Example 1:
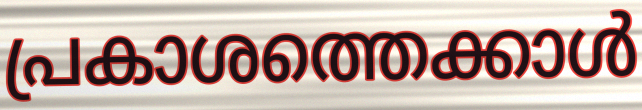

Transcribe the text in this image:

പ്രകാശത്തെക്കാൾ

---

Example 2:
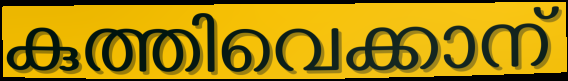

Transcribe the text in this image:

കുത്തിവെക്കാന്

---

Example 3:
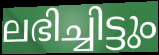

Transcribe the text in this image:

ലഭിച്ചിട്ടും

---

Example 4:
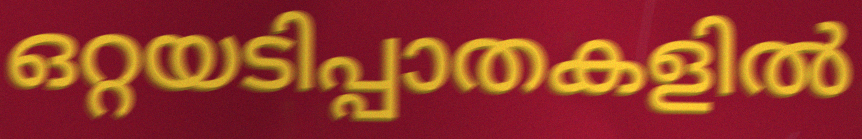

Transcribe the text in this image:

ഒറ്റയടിപ്പാതകളിൽ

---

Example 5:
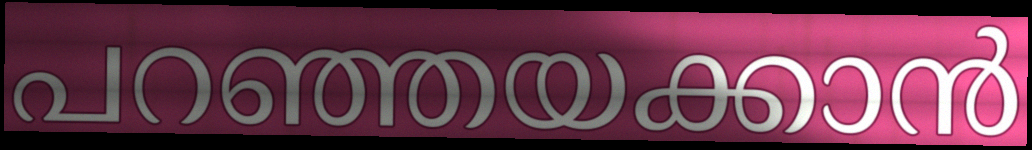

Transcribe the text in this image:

പറഞ്ഞയക്കാൻ